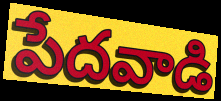
పేదవాడి